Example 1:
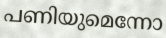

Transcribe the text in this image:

പണിയുമെന്നോ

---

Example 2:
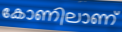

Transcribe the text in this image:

കോണിലാണ്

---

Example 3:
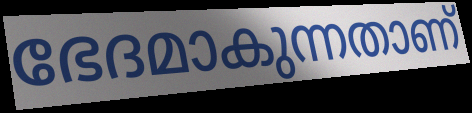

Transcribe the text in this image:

ഭേദമാകുന്നതാണ്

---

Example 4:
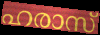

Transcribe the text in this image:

ഹരാസ്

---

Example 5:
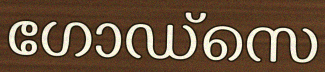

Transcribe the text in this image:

ഗോഡ്സെ